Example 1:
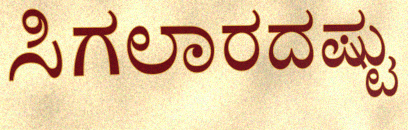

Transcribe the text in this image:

ಸಿಗಲಾರದಷ್ಟು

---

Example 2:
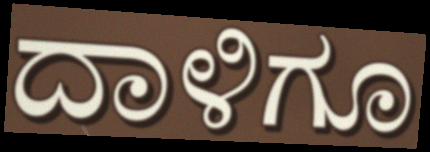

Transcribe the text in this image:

ದಾಳಿಗೂ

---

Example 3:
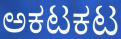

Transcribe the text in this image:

ಅಕಟಕಟ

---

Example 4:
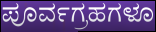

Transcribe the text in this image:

ಪೂರ್ವಗ್ರಹಗಳೂ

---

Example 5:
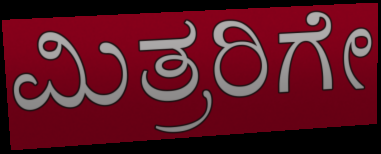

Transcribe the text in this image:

ಮಿತ್ರರಿಗೇ